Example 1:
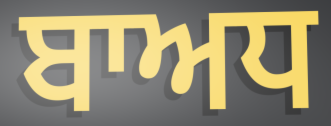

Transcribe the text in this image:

ਬਾਅਧ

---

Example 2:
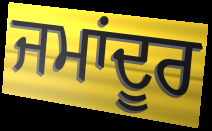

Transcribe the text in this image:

ਜਮਾਂਦੂਰ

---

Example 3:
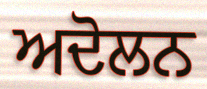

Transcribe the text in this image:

ਅਦੋਲਨ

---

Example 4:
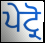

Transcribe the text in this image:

ਪੇਟ੍ਰੋ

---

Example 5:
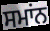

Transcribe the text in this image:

ਸਮਾਂਨ